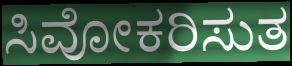
ಸಿವೋಕರಿಸುತ